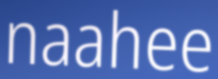
naahee